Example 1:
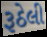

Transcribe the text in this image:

રૂઠેલી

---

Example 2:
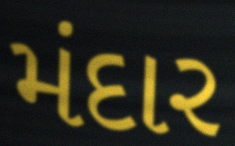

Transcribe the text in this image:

મંદાર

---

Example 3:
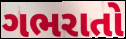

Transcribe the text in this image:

ગભરાતો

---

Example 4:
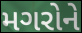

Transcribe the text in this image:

મગરોને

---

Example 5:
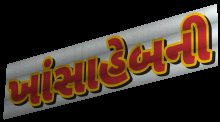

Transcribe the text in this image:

ખાંસાહેબની